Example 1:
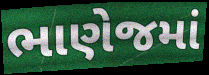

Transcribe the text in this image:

ભાણેજમાં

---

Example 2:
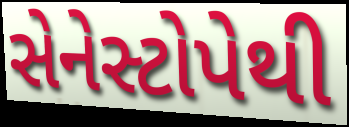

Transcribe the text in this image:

સેનેસ્ટોપેથી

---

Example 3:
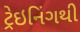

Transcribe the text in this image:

ટ્રેઇનિંગથી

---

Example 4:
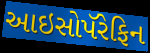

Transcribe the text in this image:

આઇસોપૅરેફિન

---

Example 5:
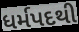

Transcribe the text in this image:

ધર્મપદથી